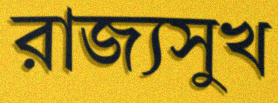
রাজ্যসুখ